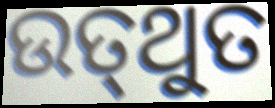
ଉତ୍‌ଥୁତ